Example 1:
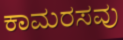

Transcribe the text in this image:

ಕಾಮರಸವು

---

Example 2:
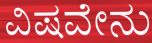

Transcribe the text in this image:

ವಿಷವೇನು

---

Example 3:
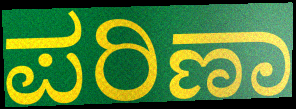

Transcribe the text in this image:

ಪರಿಣಾ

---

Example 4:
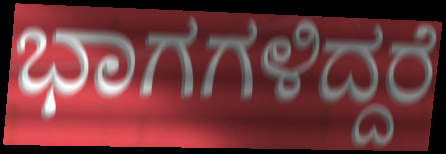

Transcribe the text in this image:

ಭಾಗಗಳಿದ್ದರೆ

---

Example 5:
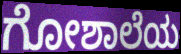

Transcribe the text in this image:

ಗೋಶಾಲೆಯ